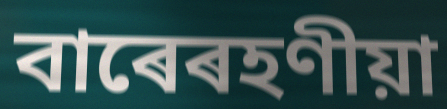
বাৰেৰহণীয়া